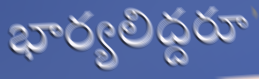
భార్యలిద్దరూ